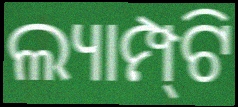
ଲ୍ୟାମ୍ପ୍‍ଟି